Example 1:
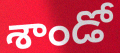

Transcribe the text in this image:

శాండో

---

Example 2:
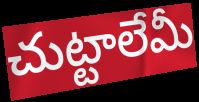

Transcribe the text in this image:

చుట్టాలేమీ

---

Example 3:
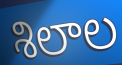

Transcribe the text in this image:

శిలాల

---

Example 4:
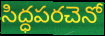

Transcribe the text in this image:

సిద్ధపరచెనో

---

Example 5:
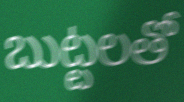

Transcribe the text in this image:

బుట్టలతో